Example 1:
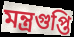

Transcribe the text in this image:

মন্ত্রগুপ্তি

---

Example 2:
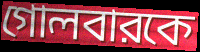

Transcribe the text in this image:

গোলবারকে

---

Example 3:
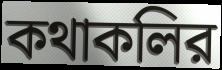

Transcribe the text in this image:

কথাকলির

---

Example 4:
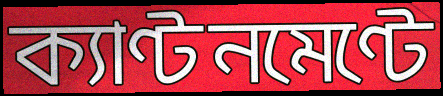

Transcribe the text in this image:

ক্যাণ্টনমেণ্টে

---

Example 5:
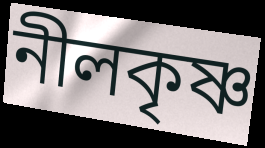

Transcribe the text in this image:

নীলকৃষ্ণ